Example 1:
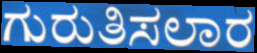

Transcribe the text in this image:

ಗುರುತಿಸಲಾರ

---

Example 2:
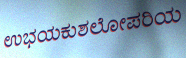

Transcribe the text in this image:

ಉಭಯಕುಶಲೋಪರಿಯ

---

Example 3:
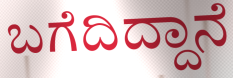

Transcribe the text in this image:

ಬಗೆದಿದ್ದಾನೆ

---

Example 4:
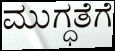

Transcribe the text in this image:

ಮುಗ್ಧತೆಗೆ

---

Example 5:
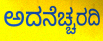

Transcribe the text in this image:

ಅದನೆಚ್ಚರದಿ